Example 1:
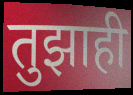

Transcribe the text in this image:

तुझाही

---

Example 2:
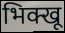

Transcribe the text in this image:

भिक्खू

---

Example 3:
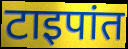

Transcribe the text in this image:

टाइपांत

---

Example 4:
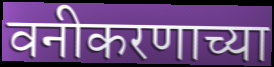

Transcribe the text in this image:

वनीकरणाच्या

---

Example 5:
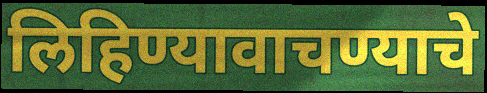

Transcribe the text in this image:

लिहिण्यावाचण्याचे